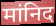
मांनिद